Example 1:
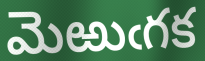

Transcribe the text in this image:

మెఱుఁగక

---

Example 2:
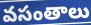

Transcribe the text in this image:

వసంతాలు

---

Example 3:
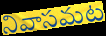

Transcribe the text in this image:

నివాసమట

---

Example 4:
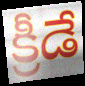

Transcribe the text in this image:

క్రీడే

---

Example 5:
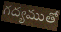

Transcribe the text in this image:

గద్యముతో